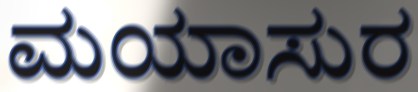
ಮಯಾಸುರ